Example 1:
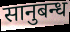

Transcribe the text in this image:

सानुबन्ध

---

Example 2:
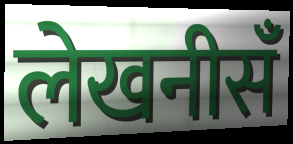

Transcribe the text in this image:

लेखनीसँ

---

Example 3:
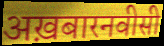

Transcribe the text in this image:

अख़बारनवीसी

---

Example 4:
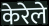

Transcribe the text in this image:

केरेले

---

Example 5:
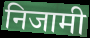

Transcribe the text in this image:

निजामी